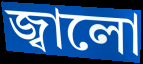
জ্বালো